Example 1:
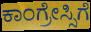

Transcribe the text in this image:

ಕಾಂಗ್ರೇಸ್ಸಿಗೆ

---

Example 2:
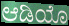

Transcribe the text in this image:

ಆಡಿಯೊ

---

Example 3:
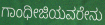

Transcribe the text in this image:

ಗಾಂಧೀಜಿಯವರೇನು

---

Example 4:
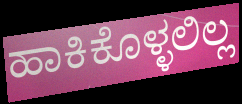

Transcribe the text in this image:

ಹಾಕಿಕೊಳ್ಳಲಿಲ್ಲ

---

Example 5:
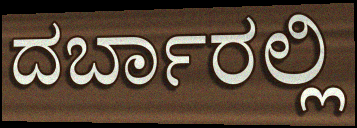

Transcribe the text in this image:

ದರ್ಬಾರಲ್ಲಿ